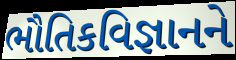
ભૌતિકવિજ્ઞાનને